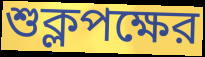
শুক্লপক্ষের